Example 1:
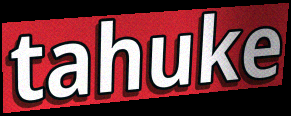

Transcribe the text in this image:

tahuke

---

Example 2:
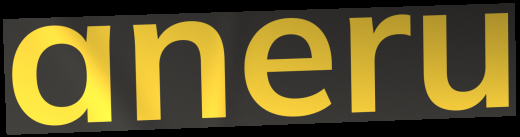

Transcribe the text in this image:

aneru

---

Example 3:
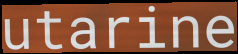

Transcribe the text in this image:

utarine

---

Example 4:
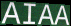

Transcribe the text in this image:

AIAA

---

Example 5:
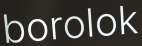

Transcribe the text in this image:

borolok